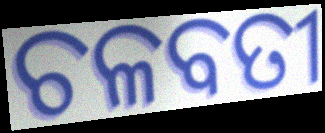
ଚଳବତୀ